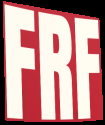
FRF